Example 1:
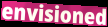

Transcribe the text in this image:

envisioned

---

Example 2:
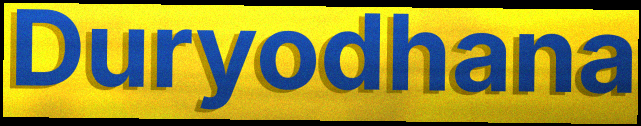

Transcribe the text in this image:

Duryodhana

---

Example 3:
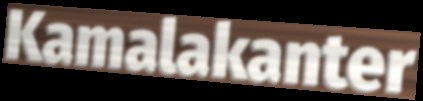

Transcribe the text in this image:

Kamalakanter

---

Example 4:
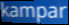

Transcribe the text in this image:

kampar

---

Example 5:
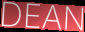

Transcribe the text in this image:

DEAN